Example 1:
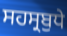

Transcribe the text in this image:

ਸਹਸ੍ਰਬੁਧੇ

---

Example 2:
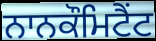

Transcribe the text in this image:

ਨਾਨਕੌਮਿਟੈਂਟ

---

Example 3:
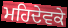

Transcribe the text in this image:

ਮਹਿਦੇਵਕੇ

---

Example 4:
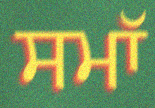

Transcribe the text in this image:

ਸਮਾੱ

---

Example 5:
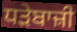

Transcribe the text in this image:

ਧੜੇਬਾਜ਼ੀ